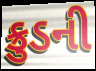
ક્રુડની